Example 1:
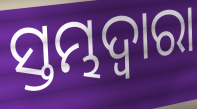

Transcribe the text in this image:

ସ୍ତମ୍ଭଦ୍ୱାରା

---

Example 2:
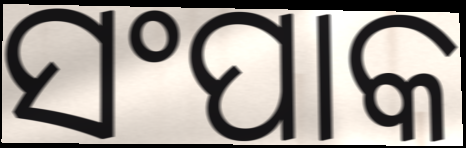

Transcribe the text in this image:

ସଂପାକ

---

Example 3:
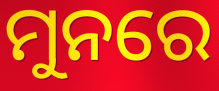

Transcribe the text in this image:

ମୁନରେ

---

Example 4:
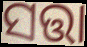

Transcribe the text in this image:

ସତ୍ତା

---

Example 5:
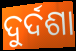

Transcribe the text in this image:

ଦୁର୍ଦଶା